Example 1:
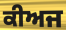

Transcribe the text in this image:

ਕੀਅਜ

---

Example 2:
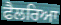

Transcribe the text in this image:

ਫੈਲਰਿਆ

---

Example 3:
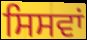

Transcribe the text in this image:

ਸਿਸਵਾਂ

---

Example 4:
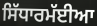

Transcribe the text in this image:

ਸਿੱਧਾਰਮੱਈਆ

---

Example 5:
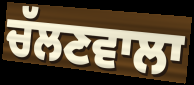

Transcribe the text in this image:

ਚੱਲਣਵਾਲਾ